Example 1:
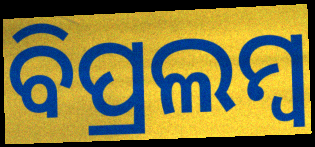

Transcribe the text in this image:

ବିପ୍ରଲମ୍ବ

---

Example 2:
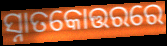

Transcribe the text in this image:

ସ୍ନାତକୋତ୍ତରରେ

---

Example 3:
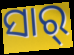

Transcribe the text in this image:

ସାର୍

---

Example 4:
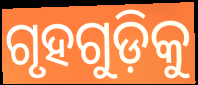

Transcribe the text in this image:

ଗୃହଗୁଡ଼ିକୁ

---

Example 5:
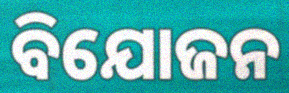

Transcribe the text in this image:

ବିଯୋଜନ